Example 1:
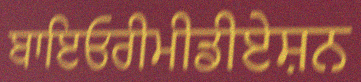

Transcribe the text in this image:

ਬਾਇਓਰੀਮੀਡੀਏਸ਼ਨ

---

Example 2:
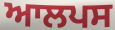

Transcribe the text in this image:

ਆਲਪਸ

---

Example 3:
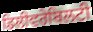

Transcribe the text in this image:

ਡਿਲੀਵਰੇਬਿਲਟੀ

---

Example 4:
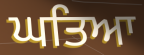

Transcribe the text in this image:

ਘਤਿਆ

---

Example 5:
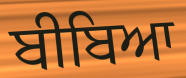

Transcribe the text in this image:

ਬੀਬਿਆ